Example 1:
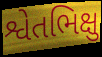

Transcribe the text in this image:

શ્વેતભિક્ષુ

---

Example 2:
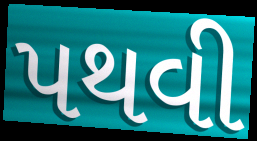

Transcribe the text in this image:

પથવી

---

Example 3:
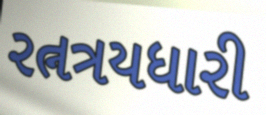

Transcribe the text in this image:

રત્નત્રયધારી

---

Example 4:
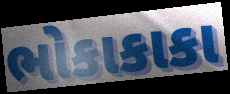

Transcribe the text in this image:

ભોકાકાકા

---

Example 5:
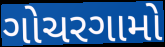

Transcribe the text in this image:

ગોચરગામો